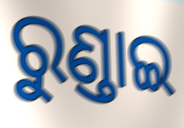
ରୁଣ୍ଡାଇ